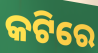
କଟିରେ